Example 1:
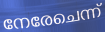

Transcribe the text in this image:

നേരേചെന്ന്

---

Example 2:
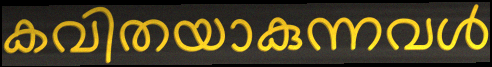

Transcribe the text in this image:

കവിതയാകുന്നവൾ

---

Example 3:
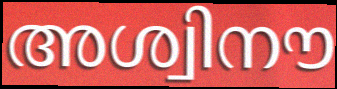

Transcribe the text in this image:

അശ്വിനൗ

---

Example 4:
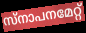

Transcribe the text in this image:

സ്നാപനമേറ്റ്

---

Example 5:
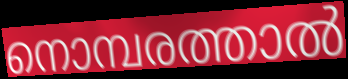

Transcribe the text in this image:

നൊമ്പരത്താൽ